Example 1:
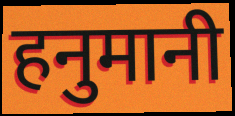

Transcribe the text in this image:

हनुमानी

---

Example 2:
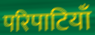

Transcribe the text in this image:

परिपाटियाँ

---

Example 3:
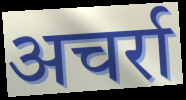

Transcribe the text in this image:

अचर्रा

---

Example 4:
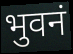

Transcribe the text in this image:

भुवनं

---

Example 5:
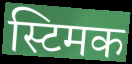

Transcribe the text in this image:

स्टिमक